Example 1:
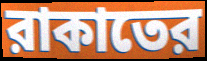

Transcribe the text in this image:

রাকাতের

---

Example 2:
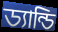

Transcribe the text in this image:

ড্যান্ডি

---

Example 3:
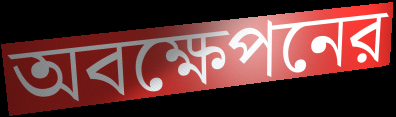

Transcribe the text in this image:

অবক্ষেপনের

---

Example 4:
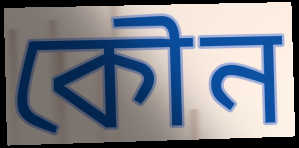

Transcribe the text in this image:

কৌন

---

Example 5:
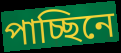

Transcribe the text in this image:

পাচ্ছিনে